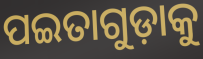
ପଇତାଗୁଡ଼ାକୁ